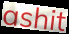
ashit